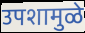
उपशामुळे